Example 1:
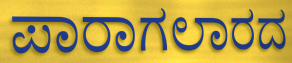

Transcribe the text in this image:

ಪಾರಾಗಲಾರದ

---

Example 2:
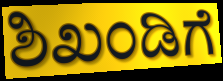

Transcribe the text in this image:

ಶಿಖಂಡಿಗೆ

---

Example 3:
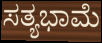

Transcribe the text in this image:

ಸತ್ಯಭಾಮೆ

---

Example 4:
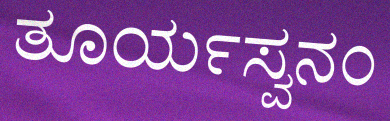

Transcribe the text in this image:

ತೂರ್ಯಸ್ವನಂ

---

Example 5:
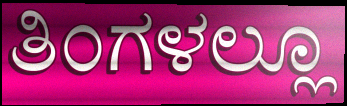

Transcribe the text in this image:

ತಿಂಗಳಲ್ಲೂ